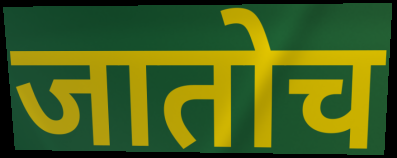
जातोच